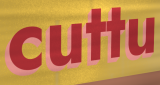
cuttu